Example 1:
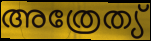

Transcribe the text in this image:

അത്രേത്യ്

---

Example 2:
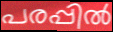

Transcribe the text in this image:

പരപ്പിൽ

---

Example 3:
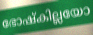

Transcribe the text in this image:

ഭോഷ്കില്ലയോ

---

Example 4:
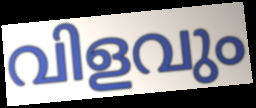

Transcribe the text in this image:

വിളവും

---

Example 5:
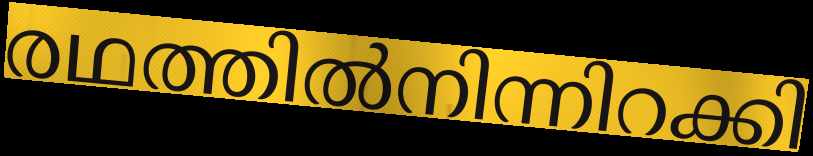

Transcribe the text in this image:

രഥത്തിൽനിന്നിറക്കി